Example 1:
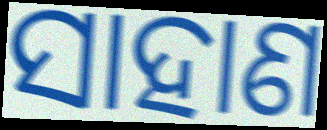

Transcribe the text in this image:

ସାହାଣ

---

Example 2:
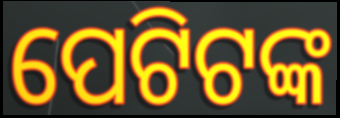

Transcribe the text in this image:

ପେଟିଟଙ୍କ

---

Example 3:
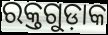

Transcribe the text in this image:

ରକ୍ତଗୁଡ଼ାକ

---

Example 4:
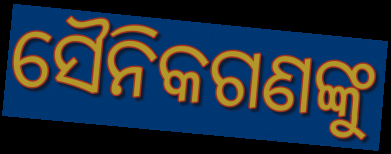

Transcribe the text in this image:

ସୈନିକଗଣଙ୍କୁ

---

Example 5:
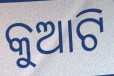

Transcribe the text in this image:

କୁଆଟି